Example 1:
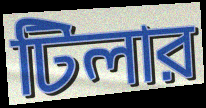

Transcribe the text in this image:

টিলার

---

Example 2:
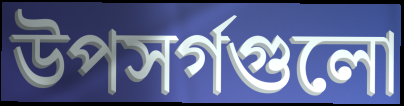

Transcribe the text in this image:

উপসর্গগুলো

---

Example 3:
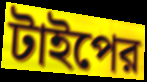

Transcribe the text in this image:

টাইপের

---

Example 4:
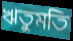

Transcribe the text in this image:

ঋতুমতি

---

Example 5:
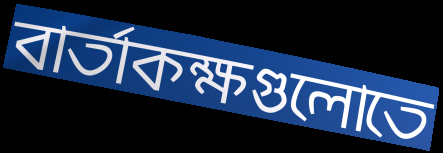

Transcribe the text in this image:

বার্তাকক্ষগুলোতে